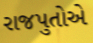
રાજપુતોએ